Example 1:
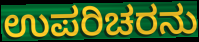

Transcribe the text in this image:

ಉಪರಿಚರನು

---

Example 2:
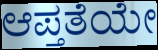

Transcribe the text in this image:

ಆಪ್ತತೆಯೇ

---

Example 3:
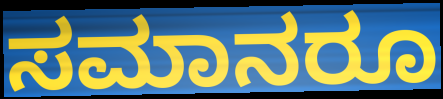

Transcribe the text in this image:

ಸಮಾನರೂ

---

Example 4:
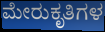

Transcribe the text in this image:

ಮೇರುಕೃತಿಗಳ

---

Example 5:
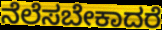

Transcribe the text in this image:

ನೆಲೆಸಬೇಕಾದರೆ